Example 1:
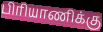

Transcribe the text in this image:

பிரியாணிக்கு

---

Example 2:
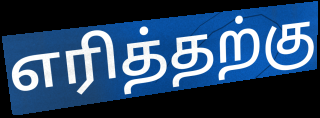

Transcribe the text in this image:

எரித்தற்கு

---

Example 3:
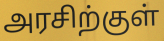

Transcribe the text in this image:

அரசிற்குள்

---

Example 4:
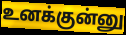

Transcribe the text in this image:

உனக்குன்னு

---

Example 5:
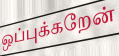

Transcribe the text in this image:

ஒப்புக்கறேன்